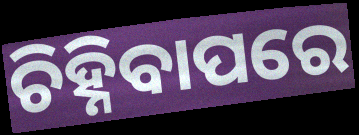
ଚିହ୍ନିବାପରେ